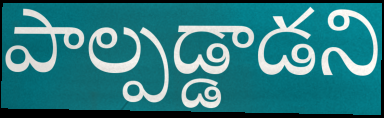
పాల్పడ్డాడని